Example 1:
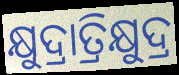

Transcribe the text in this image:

କ୍ଷୁଦ୍ରାତ୍ରିକ୍ଷୁଦ୍ର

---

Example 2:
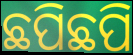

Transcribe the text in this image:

ଛପିଛପି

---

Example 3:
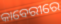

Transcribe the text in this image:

କାବେରୀରେ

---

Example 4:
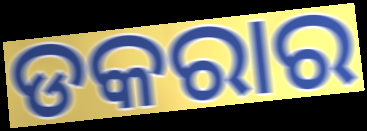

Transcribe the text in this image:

ଡକରାର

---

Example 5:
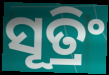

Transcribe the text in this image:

ସୂତ୍ରିଂ